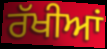
ਰੱਖੀਆਂ